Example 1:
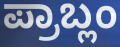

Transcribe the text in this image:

ಪ್ರಾಬ್ಲಂ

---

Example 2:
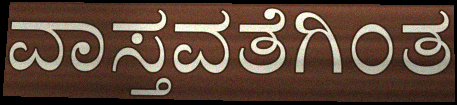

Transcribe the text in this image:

ವಾಸ್ತವತೆಗಿಂತ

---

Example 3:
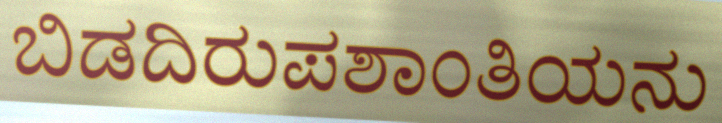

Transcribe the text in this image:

ಬಿಡದಿರುಪಶಾಂತಿಯನು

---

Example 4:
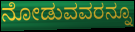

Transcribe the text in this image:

ನೋಡುವವರನ್ನೂ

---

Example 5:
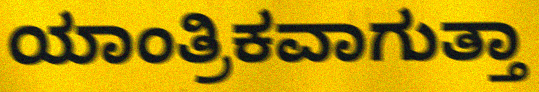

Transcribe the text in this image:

ಯಾಂತ್ರಿಕವಾಗುತ್ತಾ